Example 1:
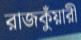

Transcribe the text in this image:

রাজকুঁয়ারী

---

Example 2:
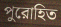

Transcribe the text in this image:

পুরোহিত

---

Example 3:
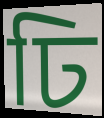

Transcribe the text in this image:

ঢি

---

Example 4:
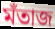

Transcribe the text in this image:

মঁতাজ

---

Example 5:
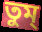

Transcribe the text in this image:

তুম্